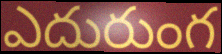
ఎదురుంగ